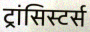
ट्रांसिस्टर्स